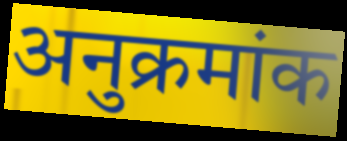
अनुक्रमांक